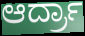
ಆರ್ದ್ರಾ